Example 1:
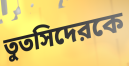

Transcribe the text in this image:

তুতসিদেরকে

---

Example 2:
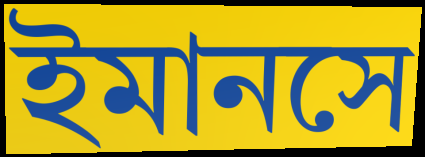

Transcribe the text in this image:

ইমানসে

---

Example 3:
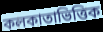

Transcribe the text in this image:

কলকাতাভিত্তিক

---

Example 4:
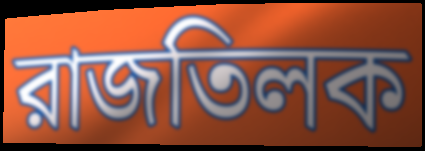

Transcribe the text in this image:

রাজতিলক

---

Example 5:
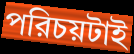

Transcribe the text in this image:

পরিচয়টাই